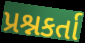
પ્રશ્નકર્તા